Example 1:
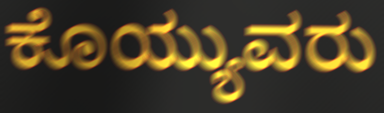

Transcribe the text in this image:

ಕೊಯ್ಯುವರು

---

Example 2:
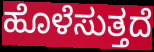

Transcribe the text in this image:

ಹೊಳೆಸುತ್ತದೆ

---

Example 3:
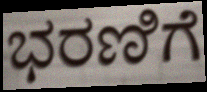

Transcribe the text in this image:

ಭರಣಿಗೆ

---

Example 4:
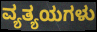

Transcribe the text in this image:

ವ್ಯತ್ಯಯಗಳು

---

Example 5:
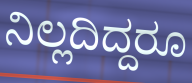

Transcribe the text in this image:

ನಿಲ್ಲದಿದ್ದರೂ